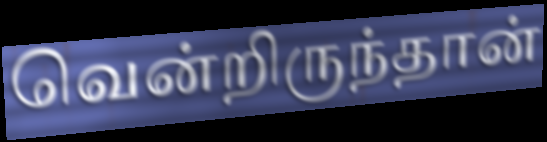
வென்றிருந்தான்